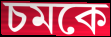
চমকে